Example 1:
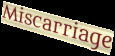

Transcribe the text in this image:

Miscarriage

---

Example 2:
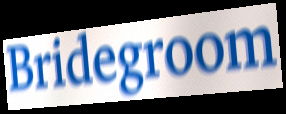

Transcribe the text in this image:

Bridegroom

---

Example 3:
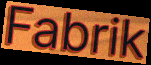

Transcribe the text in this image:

Fabrik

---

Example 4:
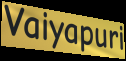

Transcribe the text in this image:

Vaiyapuri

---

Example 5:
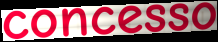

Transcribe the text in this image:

concesso